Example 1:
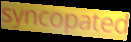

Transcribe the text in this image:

syncopated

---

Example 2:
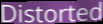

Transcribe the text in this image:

Distorted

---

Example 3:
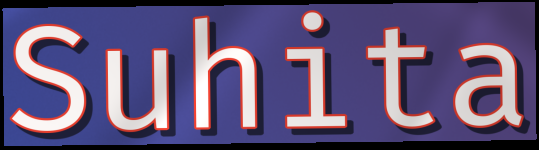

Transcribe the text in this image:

Suhita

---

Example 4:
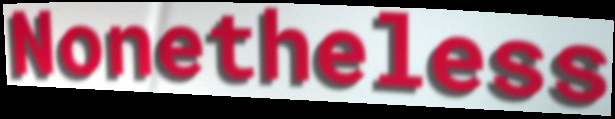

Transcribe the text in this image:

Nonetheless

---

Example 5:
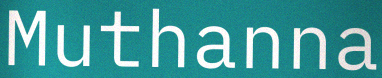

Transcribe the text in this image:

Muthanna